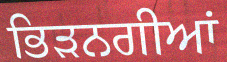
ਭਿੜਨਗੀਆਂ